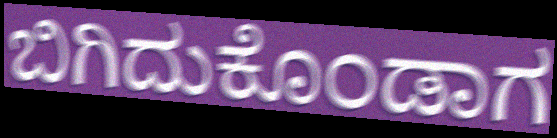
ಬಿಗಿದುಕೊಂಡಾಗ